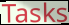
Tasks